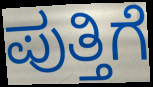
ಪುತ್ತಿಗೆ